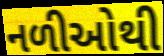
નળીઓથી